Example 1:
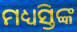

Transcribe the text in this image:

ମଧ୍ୟସ୍ତିଙ୍କ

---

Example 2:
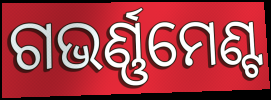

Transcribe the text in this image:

ଗଭର୍ଣ୍ଣମେଣ୍ଟ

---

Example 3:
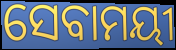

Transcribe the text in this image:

ସେବାମୟୀ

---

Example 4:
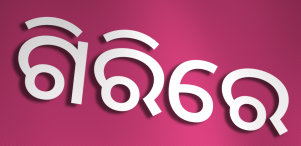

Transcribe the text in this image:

ଗିରିରେ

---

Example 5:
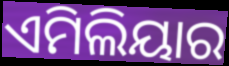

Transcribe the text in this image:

ଏମିଲିୟାର